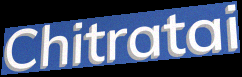
Chitratai